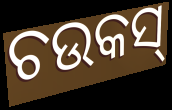
ଚଉକସ୍